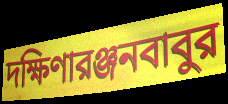
দক্ষিণারঞ্জনবাবুর